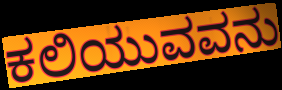
ಕಲಿಯುವವನು